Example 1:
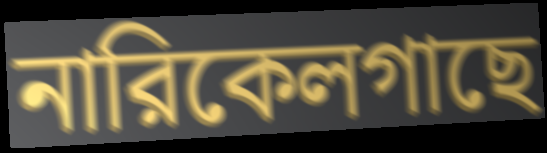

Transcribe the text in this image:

নারিকেলগাছে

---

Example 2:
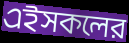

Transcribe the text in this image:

এইসকলের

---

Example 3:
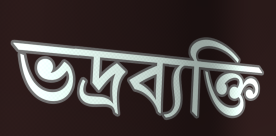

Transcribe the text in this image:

ভদ্রব্যক্তি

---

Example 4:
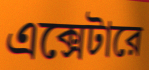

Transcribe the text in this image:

এক্সেটারে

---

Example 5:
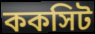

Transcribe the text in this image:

ককসিট